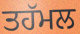
ਤਹੱਮਲ